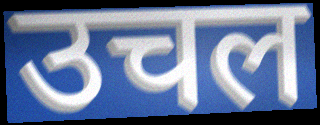
उचल